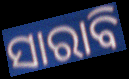
ସାରାବି